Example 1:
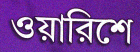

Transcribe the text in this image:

ওয়ারিশে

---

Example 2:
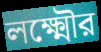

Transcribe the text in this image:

লক্ষ্মৌর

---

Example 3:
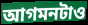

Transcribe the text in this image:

আগমনটাও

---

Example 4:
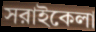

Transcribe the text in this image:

সরাইকেলা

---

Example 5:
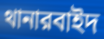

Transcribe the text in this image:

থানারবাইদ